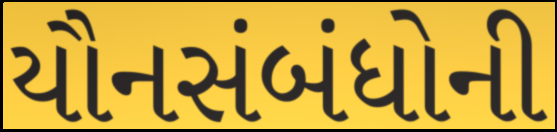
યૌનસંબંધોની